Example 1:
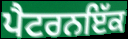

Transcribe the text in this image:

ਪੈਟਰਨਇੱਕ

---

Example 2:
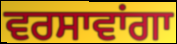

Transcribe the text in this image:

ਵਰਸਾਵਾਂਗਾ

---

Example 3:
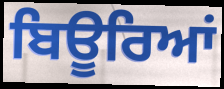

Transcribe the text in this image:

ਬਿਊਰਿਆਂ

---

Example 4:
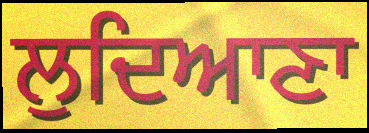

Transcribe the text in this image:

ਲੁਦਿਆਣਾ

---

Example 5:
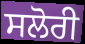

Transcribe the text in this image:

ਸਲੋਰੀ